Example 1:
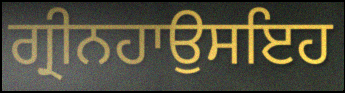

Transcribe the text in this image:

ਗ੍ਰੀਨਹਾਉਸਇਹ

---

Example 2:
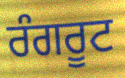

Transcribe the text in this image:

ਰੰਗਰੂਟ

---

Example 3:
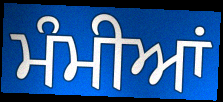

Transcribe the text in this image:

ਮੰਮੀਆਂ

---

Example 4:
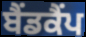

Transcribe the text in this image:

ਬੈਂਡਕੈਂਪ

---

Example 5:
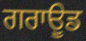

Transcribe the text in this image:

ਗਰਾਊਡ